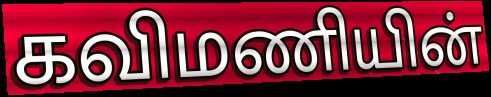
கவிமணியின்